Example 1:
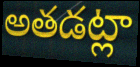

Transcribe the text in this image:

అతడట్లా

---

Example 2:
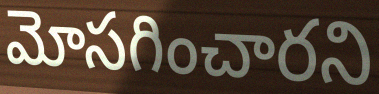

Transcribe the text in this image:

మోసగించారని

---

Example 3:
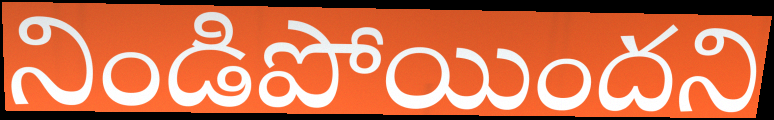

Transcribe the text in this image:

నిండిపోయిందని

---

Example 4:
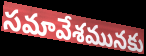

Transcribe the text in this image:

సమావేశమునకు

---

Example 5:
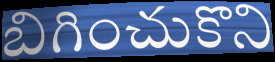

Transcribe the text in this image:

బిగించుకొని